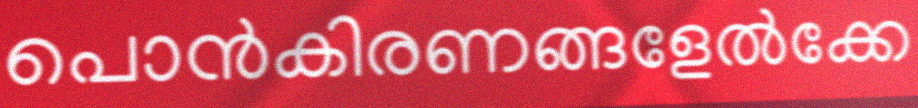
പൊൻകിരണങ്ങളേൽക്കേ